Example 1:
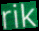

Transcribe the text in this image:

rik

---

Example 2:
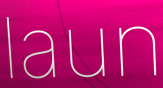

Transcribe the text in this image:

laun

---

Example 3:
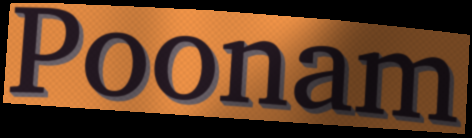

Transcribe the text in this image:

Poonam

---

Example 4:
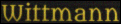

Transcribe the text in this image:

Wittmann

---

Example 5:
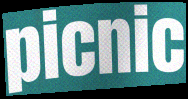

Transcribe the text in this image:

picnic